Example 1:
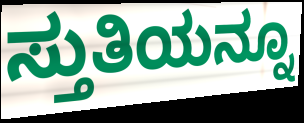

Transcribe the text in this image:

ಸ್ತುತಿಯನ್ನೂ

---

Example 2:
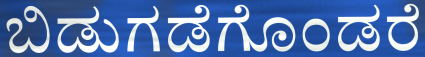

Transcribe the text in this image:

ಬಿಡುಗಡೆಗೊಂಡರೆ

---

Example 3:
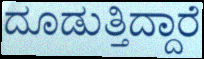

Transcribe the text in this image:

ದೂಡುತ್ತಿದ್ದಾರೆ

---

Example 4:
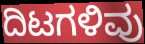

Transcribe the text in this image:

ದಿಟಗಳಿವು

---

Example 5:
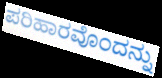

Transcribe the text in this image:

ಪರಿಹಾರವೊಂದನ್ನು